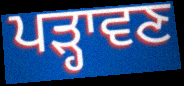
ਪੜ੍ਹਾਵਣ